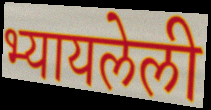
भ्यायलेली